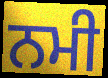
ਨਮੀ